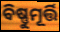
ବିଷ୍ଣୁମୂର୍ତ୍ତି